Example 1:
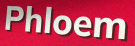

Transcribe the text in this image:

Phloem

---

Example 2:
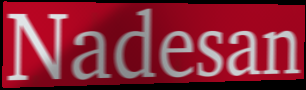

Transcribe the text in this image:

Nadesan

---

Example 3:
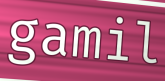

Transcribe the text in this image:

gamil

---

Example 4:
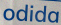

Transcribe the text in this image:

odida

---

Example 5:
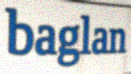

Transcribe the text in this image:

baglan